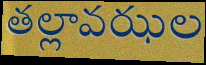
తల్లావఝల